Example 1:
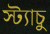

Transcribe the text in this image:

স্ট্যাচু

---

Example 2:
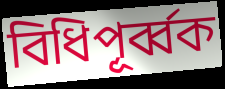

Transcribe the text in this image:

বিধিপূর্ব্বক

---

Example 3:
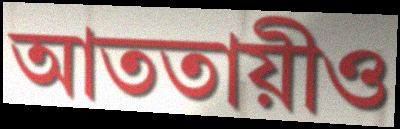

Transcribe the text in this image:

আততায়ীও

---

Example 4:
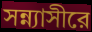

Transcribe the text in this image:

সন্ন্যাসীরে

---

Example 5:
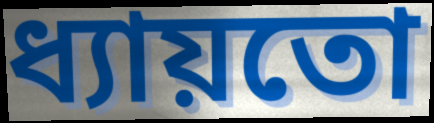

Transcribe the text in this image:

ধ্যায়তো